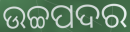
ଉଚ୍ଚପଦର